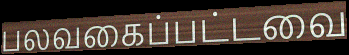
பலவகைப்பட்டவை